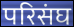
परिसंघ